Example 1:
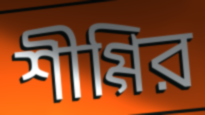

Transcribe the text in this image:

শীগ্গির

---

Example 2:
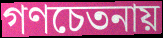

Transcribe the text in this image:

গণচেতনায়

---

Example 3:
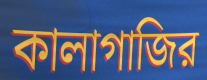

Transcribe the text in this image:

কালাগাজির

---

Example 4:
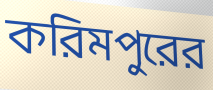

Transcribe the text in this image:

করিমপুরের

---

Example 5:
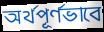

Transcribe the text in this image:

অর্থপূর্ণভাবে